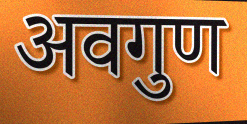
अवगुण